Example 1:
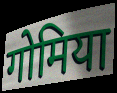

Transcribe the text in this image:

गोमिया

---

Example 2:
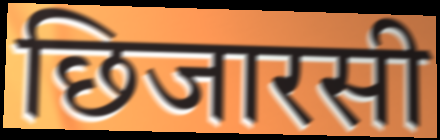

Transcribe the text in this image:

छिजारसी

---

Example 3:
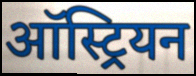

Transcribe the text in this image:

ऑस्ट्रियन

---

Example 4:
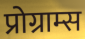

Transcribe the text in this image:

प्रोग्राम्‍स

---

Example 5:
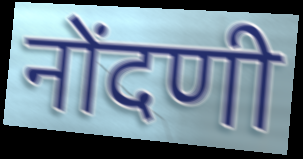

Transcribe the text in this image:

नोंदणी